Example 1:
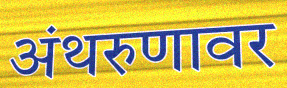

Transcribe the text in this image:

अंथरुणावर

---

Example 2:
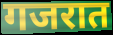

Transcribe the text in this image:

गजरात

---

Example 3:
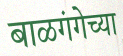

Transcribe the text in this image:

बाळगंगेच्या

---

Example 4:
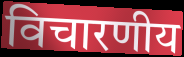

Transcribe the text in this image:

विचारणीय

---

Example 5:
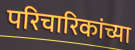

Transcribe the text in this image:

परिचारिकांच्या